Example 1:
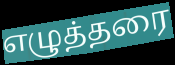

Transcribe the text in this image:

எழுத்தரை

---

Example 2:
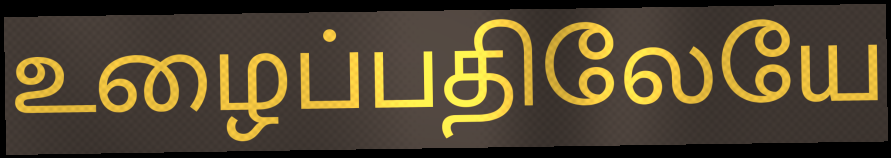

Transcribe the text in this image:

உழைப்பதிலேயே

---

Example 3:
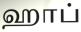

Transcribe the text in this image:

ஹாப்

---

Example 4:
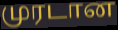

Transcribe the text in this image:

முரடான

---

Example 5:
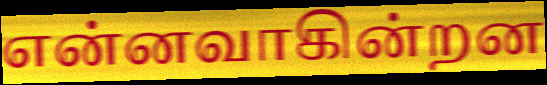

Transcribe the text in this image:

என்னவாகின்றன